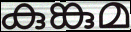
കുങ്കുമ